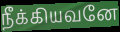
நீக்கியவனே